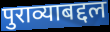
पुराव्याबद्दल